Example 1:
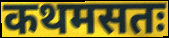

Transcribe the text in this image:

कथमसतः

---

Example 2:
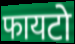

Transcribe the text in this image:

फायटो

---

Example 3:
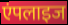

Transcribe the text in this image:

एंपलाइज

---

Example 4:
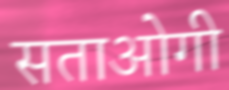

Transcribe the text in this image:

सताओगी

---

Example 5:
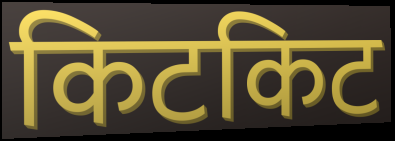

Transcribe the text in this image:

किटकिट